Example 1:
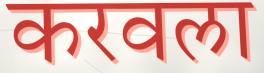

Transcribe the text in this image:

करवला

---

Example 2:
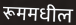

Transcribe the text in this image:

रूममधील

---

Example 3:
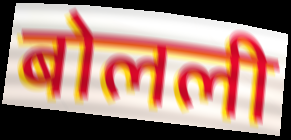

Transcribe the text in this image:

बोलली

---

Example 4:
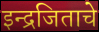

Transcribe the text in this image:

इन्द्रजिताचे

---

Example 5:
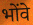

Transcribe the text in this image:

भोंवे